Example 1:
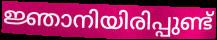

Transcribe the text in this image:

ജ്ഞാനിയിരിപ്പുണ്ട്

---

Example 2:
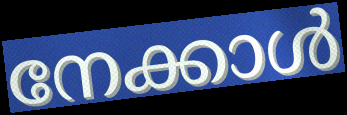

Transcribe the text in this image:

നേക്കാൾ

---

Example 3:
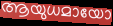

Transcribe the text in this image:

ആയുധമായോ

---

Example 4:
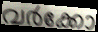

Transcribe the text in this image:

വർക്കോ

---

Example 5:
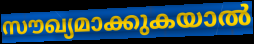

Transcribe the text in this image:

സൗഖ്യമാക്കുകയാൽ